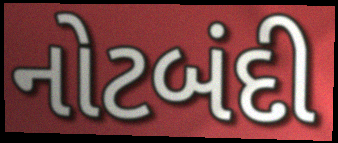
નોટબંદી